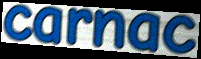
carnac